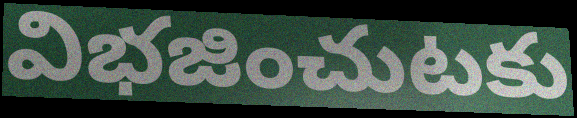
విభజించుటకు